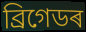
ব্ৰিগেডৰ